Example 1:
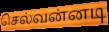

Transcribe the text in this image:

செல்வன்னடி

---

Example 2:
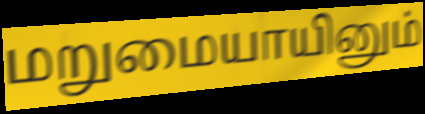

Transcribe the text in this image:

மறுமையாயினும்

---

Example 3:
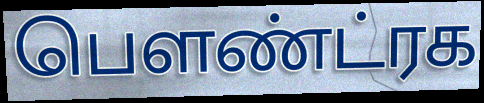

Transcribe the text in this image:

பௌண்ட்ரக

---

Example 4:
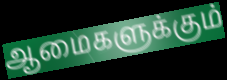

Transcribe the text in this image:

ஆமைகளுக்கும்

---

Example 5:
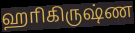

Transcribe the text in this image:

ஹரிகிருஷ்ண